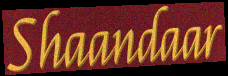
Shaandaar